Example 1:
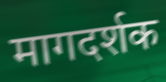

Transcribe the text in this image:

मागदर्शक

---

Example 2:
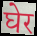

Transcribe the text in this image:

घेर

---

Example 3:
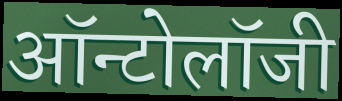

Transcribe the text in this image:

ऑन्टोलॉजी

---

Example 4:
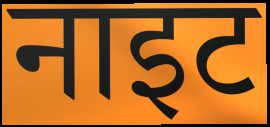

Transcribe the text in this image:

नाइट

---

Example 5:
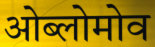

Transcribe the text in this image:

ओब्लोमोव